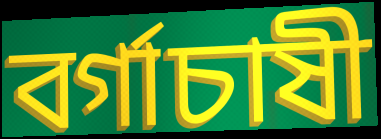
বর্গাচাষী